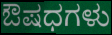
ಔಷಧಗಳು